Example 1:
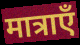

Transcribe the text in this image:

मात्राएँ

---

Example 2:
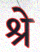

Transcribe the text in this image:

श्रे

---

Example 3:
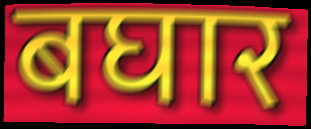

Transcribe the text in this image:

बघार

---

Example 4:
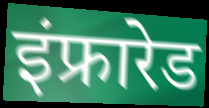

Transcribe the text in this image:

इंफ्रारेड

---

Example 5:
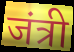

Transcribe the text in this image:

जंत्री